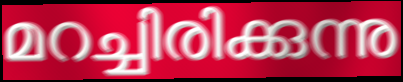
മറച്ചിരിക്കുന്നു